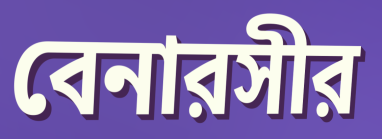
বেনারসীর